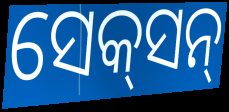
ସେକ୍‌ସନ୍